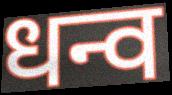
धन्व